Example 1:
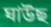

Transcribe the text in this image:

ঘাউছ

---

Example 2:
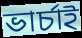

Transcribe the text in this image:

ভাৰ্চাই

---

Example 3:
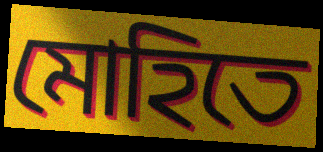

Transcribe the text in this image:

মোহিতে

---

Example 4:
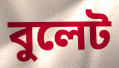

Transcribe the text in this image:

বুলেট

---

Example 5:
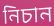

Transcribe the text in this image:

নিচান